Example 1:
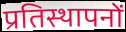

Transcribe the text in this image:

प्रतिस्थापनों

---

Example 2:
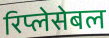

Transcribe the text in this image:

रिप्लेसेबल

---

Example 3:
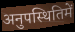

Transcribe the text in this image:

अनुपस्थितिमें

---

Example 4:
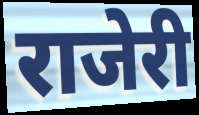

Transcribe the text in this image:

राजेरी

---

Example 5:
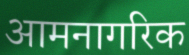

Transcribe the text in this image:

आमनागरिक